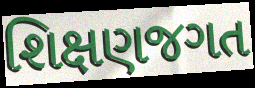
શિક્ષણજગત